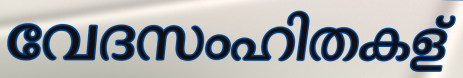
വേദസംഹിതകള്